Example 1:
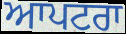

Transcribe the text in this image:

ਆਪਟਰਾ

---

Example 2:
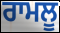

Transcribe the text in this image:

ਰਾਮਲੂ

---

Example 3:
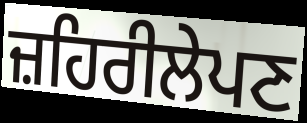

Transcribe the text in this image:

ਜ਼ਹਿਰੀਲੇਪਣ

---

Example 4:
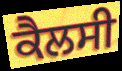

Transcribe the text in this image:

ਕੈਲਸੀ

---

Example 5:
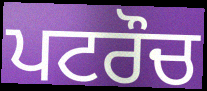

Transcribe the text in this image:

ਪਟਰੌਚ